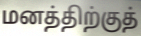
மனத்திற்குத்